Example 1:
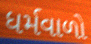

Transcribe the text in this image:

ધર્મવાળો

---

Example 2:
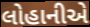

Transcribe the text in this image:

લોહાનીએ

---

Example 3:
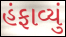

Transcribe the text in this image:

હંફાવ્યું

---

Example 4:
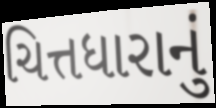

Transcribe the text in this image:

ચિત્તધારાનું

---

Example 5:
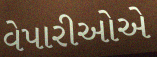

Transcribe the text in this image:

વેપારીઓએ